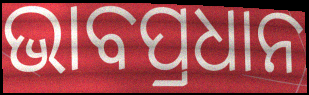
ଭାବପ୍ରଧାନ